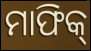
ମାଫିକ୍